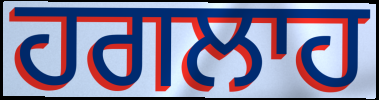
ਹਗਲਾਹ